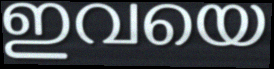
ഇവയെ